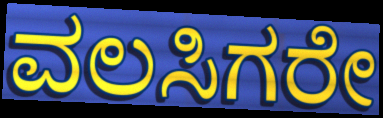
ವಲಸಿಗರೇ